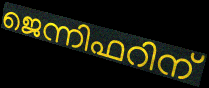
ജെന്നിഫറിന്